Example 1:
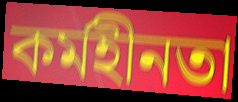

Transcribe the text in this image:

কৰ্মহীনতা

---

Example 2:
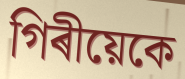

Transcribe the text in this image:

গিৰীয়েকে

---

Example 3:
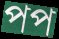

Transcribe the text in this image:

পপ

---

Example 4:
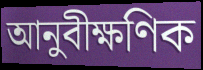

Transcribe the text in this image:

আনুবীক্ষণিক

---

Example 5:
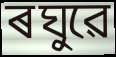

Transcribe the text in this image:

ৰঘুৱে